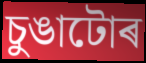
চুঙাটোৰ